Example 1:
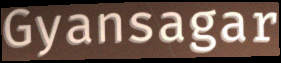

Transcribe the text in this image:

Gyansagar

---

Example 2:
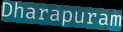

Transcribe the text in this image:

Dharapuram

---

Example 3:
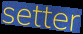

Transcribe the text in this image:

setter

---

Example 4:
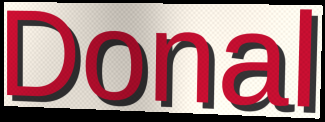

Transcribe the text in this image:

Donal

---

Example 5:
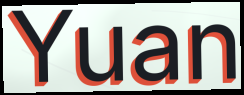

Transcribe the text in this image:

Yuan